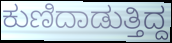
ಕುಣಿದಾಡುತ್ತಿದ್ದ